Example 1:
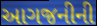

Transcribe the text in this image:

આગજનીની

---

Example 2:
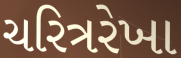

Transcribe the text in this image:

ચરિત્રરેખા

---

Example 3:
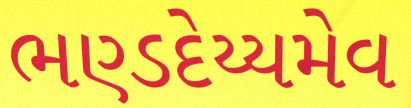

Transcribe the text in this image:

ભણ્ડદેય્યમેવ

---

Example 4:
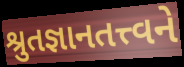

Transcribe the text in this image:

શ્રુતજ્ઞાનતત્ત્વને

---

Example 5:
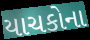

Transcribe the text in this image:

યાચકોના